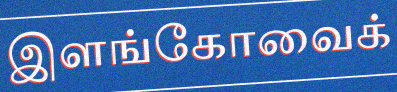
இளங்கோவைக்